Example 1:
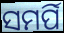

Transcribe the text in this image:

ସମର୍ପି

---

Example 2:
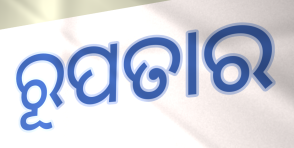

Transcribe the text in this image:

ରୂପତାର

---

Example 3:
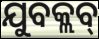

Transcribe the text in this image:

ଯୁବକ୍ଲବ୍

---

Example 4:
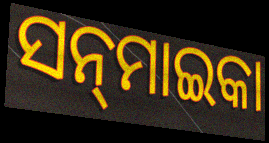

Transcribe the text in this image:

ସନ୍‌ମାଇକା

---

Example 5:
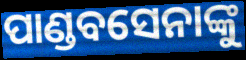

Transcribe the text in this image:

ପାଣ୍ଡବସେନାଙ୍କୁ